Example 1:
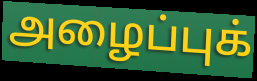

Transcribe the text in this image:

அழைப்புக்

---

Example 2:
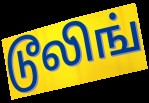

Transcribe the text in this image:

டூலிங்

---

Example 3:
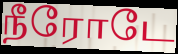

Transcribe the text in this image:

நீரோடே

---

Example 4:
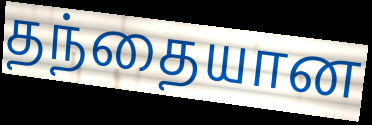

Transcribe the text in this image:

தந்தையான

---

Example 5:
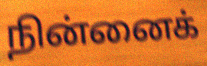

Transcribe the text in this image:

நின்னைக்